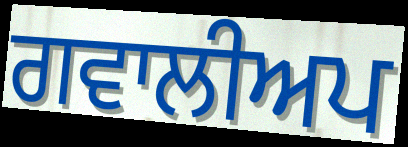
ਗਵਾਲੀਅਪ